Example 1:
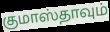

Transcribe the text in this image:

குமாஸ்தாவும்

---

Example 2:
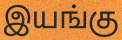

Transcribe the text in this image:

இயங்கு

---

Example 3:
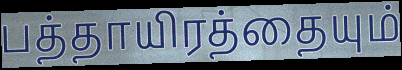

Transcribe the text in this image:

பத்தாயிரத்தையும்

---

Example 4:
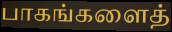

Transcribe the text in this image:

பாகங்களைத்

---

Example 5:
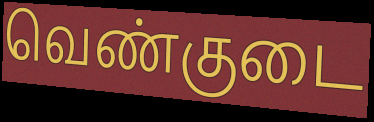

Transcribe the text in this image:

வெண்குடை